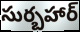
సుర్బహార్